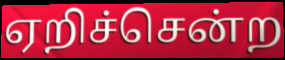
ஏறிச்சென்ற